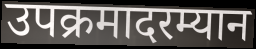
उपक्रमादरम्यान